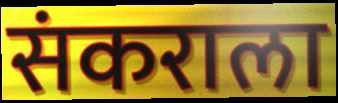
संकराला